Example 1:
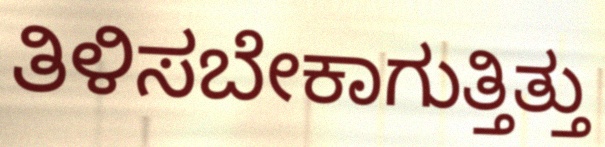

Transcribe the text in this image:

ತಿಳಿಸಬೇಕಾಗುತ್ತಿತ್ತು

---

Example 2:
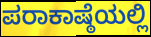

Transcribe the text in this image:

ಪರಾಕಾಷ್ಠೆಯಲ್ಲಿ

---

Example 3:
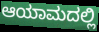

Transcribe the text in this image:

ಆಯಾಮದಲ್ಲಿ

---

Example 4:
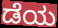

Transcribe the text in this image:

ಡೆಯ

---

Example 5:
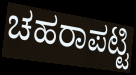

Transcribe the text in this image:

ಚಹರಾಪಟ್ಟಿ